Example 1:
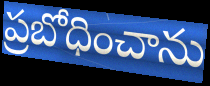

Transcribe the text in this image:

ప్రబోధించాను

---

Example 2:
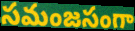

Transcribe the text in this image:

సమంజసంగా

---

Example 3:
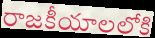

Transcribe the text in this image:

రాజకీయాలలోకి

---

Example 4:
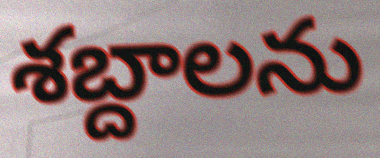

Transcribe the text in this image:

శబ్దాలను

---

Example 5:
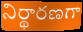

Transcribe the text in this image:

నిర్థారణగా